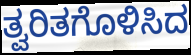
ತ್ವರಿತಗೊಳಿಸಿದ